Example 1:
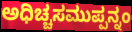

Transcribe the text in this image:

ಅಧಿಚ್ಚಸಮುಪ್ಪನ್ನಂ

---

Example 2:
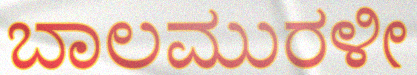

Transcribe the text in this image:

ಬಾಲಮುರಳೀ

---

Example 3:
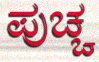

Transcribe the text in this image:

ಪುಚ್ಚ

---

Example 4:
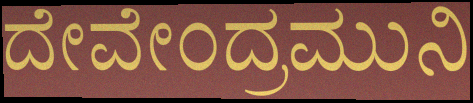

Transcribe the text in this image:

ದೇವೇಂದ್ರಮುನಿ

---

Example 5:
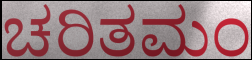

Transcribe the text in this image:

ಚರಿತಮಂ